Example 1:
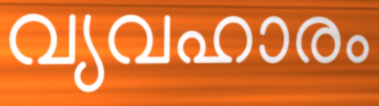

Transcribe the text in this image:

വ്യവഹാരം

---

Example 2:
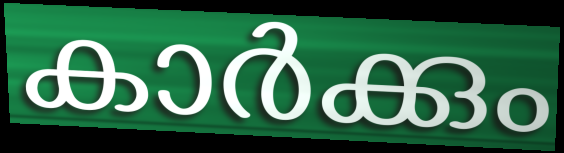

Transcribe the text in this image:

കാർക്കും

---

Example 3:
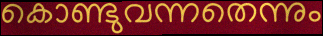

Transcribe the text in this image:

കൊണ്ടുവന്നതെന്നും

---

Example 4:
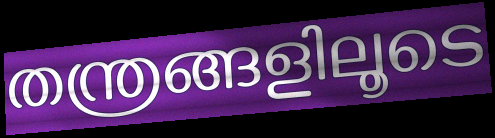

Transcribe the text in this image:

തന്ത്രങ്ങളിലൂടെ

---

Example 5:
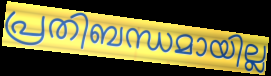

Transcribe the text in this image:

പ്രതിബന്ധമായില്ല